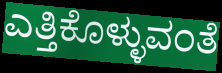
ಎತ್ತಿಕೊಳ್ಳುವಂತೆ